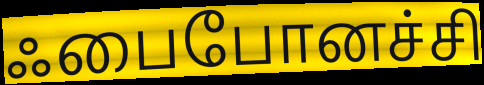
ஃபைபோனச்சி